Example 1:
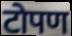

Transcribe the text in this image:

टोपण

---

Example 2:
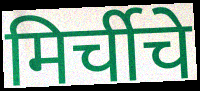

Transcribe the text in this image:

मिर्चीचे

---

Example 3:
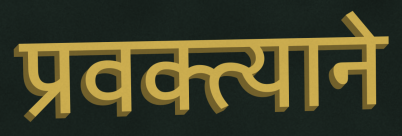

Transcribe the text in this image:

प्रवक्त्याने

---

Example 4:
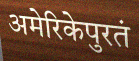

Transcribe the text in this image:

अमेरिकेपुरतं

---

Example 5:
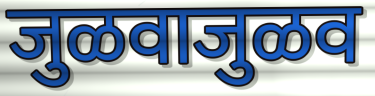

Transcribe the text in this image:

जुळवाजुळव